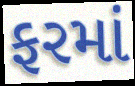
ફરમાં